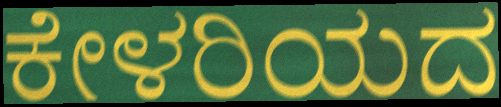
ಕೇಳರಿಯದ